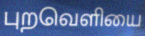
புறவெளியை